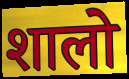
शालो